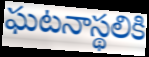
ఘటనాస్థలికి